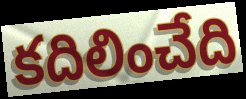
కదిలించేది